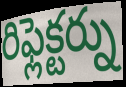
రిఫ్లెక్టర్ను